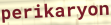
perikaryon